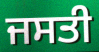
ਜਸਤੀ